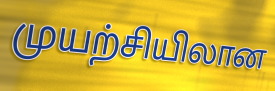
முயற்சியிலான